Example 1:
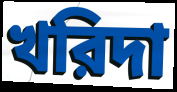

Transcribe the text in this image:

খরিদা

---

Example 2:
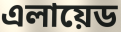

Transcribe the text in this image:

এলায়েড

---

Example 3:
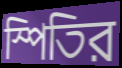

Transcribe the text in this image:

স্পিতির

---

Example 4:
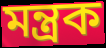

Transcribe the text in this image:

মন্ত্রক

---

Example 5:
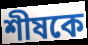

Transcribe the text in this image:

শীষকে